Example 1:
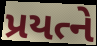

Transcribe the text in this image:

પ્રયત્ને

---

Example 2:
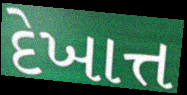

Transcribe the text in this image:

દેખાત્ત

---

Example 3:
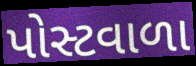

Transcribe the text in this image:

પોસ્ટવાળા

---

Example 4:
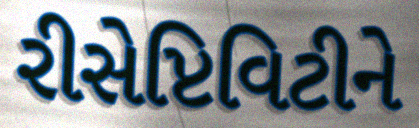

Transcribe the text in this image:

રીસેપ્ટિવિટીને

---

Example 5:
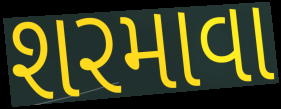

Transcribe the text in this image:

શરમાવા